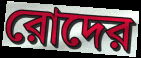
রোদের